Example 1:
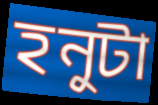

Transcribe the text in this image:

হনুটা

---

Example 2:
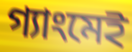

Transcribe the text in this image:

গ্যাংমেই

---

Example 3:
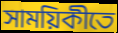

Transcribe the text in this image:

সাময়িকীতে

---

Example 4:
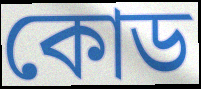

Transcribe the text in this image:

কোড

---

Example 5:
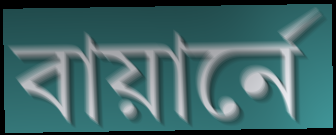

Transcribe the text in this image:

বায়ার্নে